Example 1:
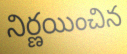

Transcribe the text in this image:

నిర్ణయించిన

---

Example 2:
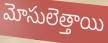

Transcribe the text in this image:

మోసులెత్తాయి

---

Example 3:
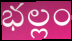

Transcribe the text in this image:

భల్లం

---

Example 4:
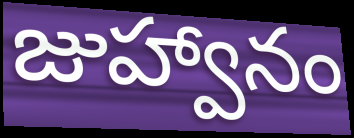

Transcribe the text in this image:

జుహ్వానం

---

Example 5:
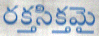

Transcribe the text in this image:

రక్తసిక్తమై